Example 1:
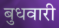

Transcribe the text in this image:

बुधवारी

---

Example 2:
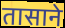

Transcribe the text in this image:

तासाने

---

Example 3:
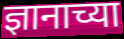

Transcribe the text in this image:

ज्ञानाच्या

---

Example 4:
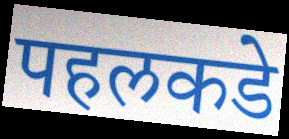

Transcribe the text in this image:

पहलकडे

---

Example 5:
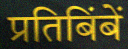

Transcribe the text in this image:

प्रतिबिंबें